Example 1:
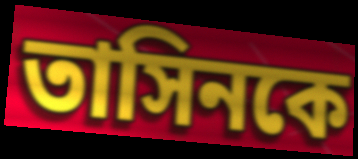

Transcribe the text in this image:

তাসিনকে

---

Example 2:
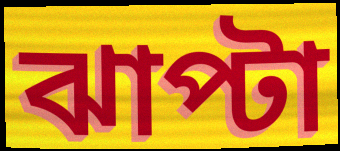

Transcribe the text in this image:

ঝাপ্টা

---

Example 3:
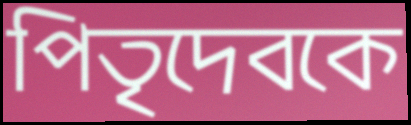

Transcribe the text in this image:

পিতৃদেবকে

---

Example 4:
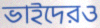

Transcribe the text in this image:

ভাইদেরও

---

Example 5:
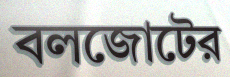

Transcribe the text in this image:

বলজোটের